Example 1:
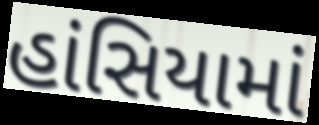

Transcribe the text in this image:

હાંસિયામાં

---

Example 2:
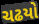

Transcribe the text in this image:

ચઢયો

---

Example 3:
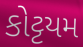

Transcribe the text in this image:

કોટ્ટયમ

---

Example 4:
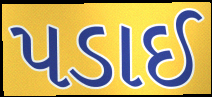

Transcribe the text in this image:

પડાઈ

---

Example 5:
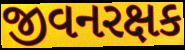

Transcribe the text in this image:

જીવનરક્ષક